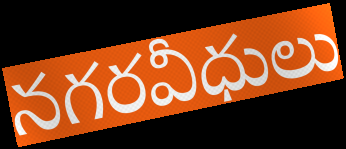
నగరవీధులు